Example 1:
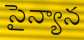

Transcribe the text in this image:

సైన్యాన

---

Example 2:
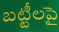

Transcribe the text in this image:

బట్టీలపై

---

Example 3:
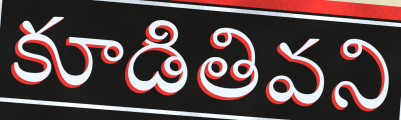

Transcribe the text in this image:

కూడితివని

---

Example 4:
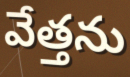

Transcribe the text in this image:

వేత్తను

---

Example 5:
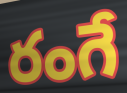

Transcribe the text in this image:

రంగే